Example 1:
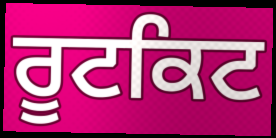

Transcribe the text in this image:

ਰੂਟਕਿਟ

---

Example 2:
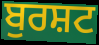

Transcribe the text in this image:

ਬੁਰਸ਼ਟ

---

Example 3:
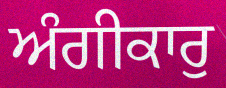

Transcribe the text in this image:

ਅੰਗੀਕਾਰੁ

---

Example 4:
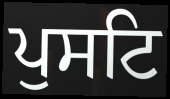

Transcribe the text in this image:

ਪੁਸਟਿ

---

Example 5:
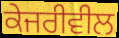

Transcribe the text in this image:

ਕੇਜਰੀਵੀਲ